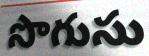
సొగుసు